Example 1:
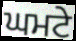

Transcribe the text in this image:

ਘਮਟੇ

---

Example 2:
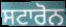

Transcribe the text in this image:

ਸਟਾਰੋਨ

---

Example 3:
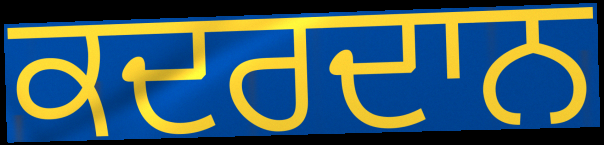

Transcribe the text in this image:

ਕਦਰਦਾਨ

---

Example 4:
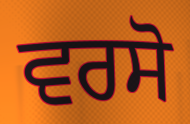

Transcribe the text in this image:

ਵਰਸੋ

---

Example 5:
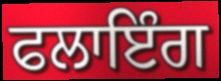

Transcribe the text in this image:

ਫਲਾਇੰਗ